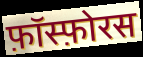
फ़ॉस्फ़ोरस